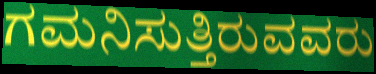
ಗಮನಿಸುತ್ತಿರುವವರು